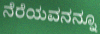
ನೆರೆಯವನನ್ನೂ